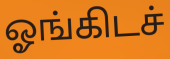
ஓங்கிடச்